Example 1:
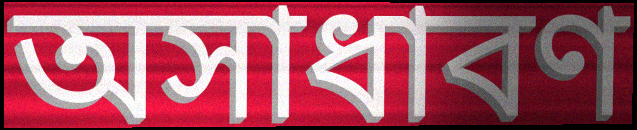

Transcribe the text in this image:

অসাধাবণ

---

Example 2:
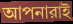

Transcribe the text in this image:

আপনারাই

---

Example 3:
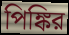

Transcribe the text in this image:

পিঙ্কির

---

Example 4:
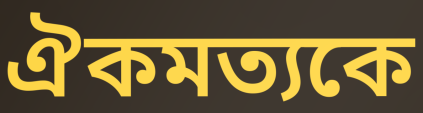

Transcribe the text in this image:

ঐকমত্যকে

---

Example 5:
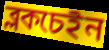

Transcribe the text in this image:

ব্লকচেইন